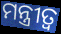
ମନ୍ତ୍ରୀତ୍ୱ